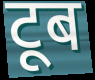
टूब